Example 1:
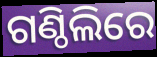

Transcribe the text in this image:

ଗଣ୍ଠିଲିରେ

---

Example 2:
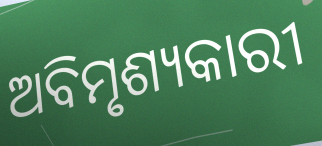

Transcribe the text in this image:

ଅବିମୃଶ୍ୟକାରୀ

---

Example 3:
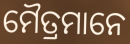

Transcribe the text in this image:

ମୈତ୍ରମାନେ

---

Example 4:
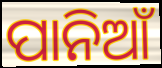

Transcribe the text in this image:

ପାନିଆଁ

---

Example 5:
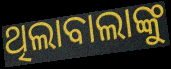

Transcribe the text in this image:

ଥିଲାବାଲାଙ୍କୁ